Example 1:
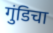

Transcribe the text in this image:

गुंडिचा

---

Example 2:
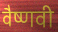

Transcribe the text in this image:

वैष्णवी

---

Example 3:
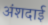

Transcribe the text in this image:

अंशदाई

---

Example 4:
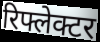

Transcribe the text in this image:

रिफ्लेक्टर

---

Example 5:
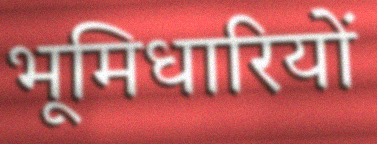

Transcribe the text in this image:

भूमिधारियों